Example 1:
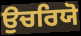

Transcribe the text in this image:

ਉਚਰਿਯੋ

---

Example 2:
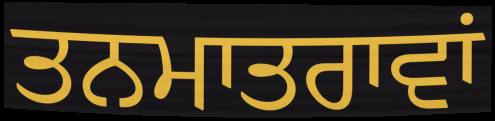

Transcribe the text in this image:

ਤਨਮਾਤਰਾਵਾਂ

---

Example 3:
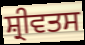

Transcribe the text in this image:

ਸ਼੍ਰੀਵਤਸ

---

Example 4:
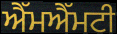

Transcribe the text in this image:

ਐੱਮਐੱਮਟੀ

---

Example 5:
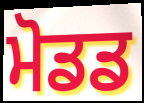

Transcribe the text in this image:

ਮੋਡਡ